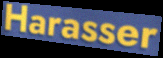
Harasser